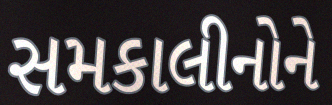
સમકાલીનોને